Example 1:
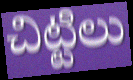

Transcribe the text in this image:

చిట్టిలు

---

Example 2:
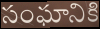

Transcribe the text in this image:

సంఘానికి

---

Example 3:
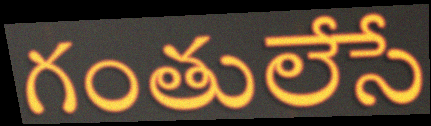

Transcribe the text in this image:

గంతులేసే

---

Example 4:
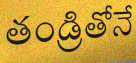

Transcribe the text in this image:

తండ్రితోనే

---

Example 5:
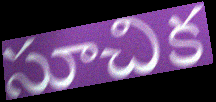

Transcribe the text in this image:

సూచిక